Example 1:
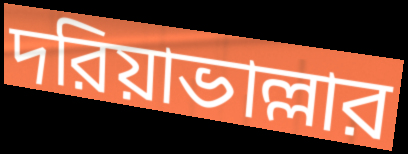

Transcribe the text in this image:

দরিয়াভাল্লার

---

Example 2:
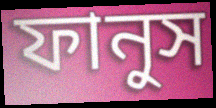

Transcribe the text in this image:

ফানুস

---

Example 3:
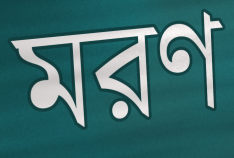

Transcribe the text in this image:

মরণ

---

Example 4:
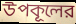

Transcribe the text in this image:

উপকূলের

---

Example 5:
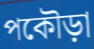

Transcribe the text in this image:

পকৌড়া